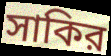
সাকির